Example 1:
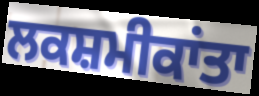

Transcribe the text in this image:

ਲਕਸ਼ਮੀਕਾਂਤਾ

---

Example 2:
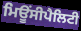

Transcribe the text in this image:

ਮਿਊਂਸੀਪੈਲਿਟੀ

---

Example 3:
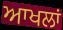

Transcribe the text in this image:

ਆਖਲਾਂ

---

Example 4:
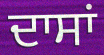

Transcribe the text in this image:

ਦਾਸਾਂ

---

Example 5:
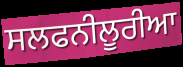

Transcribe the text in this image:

ਸਲਫਨੀਲੂਰੀਆ